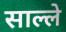
साल्ले